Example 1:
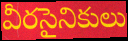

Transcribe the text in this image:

వీరసైనికులు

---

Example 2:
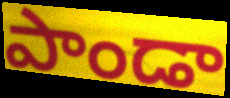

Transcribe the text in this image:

పాండా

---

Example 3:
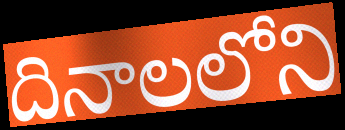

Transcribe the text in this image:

దినాలలోని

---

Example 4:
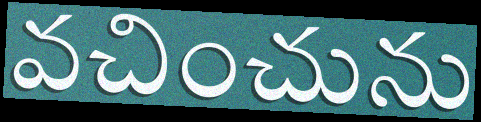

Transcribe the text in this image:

వచించును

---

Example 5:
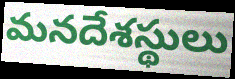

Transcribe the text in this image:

మనదేశస్థులు